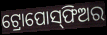
ଟ୍ରୋପୋସ୍‌ଫିଅର